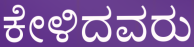
ಕೇಳಿದವರು